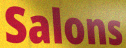
Salons